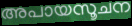
അപായസൂചന